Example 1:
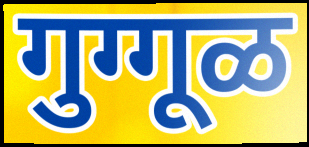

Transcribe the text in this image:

गुग्गूळ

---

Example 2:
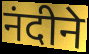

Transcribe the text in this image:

नंदीने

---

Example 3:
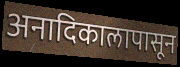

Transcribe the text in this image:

अनादिकालापासून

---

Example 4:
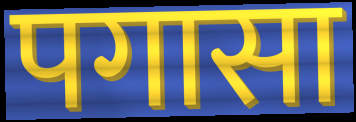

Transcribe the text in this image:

पगासा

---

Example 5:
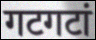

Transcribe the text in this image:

गटगटां